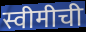
स्वीमीची